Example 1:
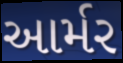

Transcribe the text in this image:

આર્મર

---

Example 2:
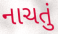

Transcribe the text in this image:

નાચતું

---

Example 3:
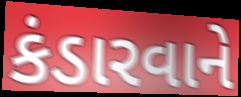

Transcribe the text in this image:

કંડારવાને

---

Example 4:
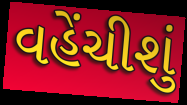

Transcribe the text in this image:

વહેંચીશું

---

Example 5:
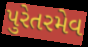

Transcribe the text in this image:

પુરેતરમેવ